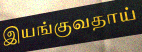
இயங்குவதாய்